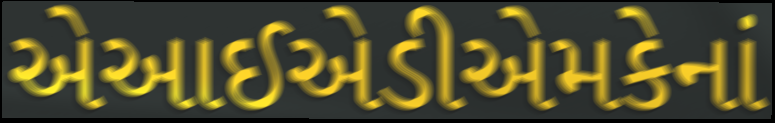
એઆઈએડીએમકેનાં